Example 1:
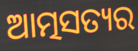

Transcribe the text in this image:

ଆତ୍ମସତ୍ୟର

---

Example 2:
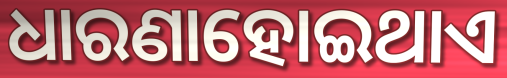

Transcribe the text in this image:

ଧାରଣାହୋଇଥାଏ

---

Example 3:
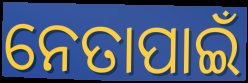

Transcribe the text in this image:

ନେତାପାଇଁ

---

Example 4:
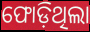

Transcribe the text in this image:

ଫୋଡ଼ିଥିଲା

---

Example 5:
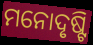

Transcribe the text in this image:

ମନୋଦୃଷ୍ଟି